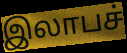
இலாபச்